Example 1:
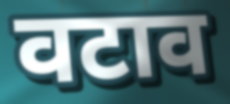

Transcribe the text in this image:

वटाव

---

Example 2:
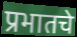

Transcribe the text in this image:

प्रभातचे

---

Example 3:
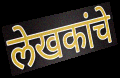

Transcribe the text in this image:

लेखकांचे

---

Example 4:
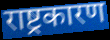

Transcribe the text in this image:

राष्ट्रकारण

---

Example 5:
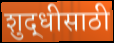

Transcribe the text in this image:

शुद्धीसाठी